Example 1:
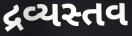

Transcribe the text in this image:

દ્રવ્યસ્તવ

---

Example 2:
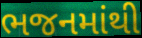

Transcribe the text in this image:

ભજનમાંથી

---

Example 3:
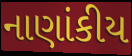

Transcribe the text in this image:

નાણાંકીય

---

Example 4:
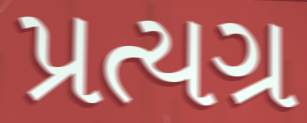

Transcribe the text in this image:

પ્રત્યગ્ર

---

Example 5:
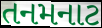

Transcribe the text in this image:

તનમનાટ